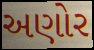
અણોર